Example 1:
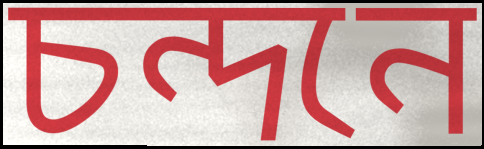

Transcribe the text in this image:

চন্দনে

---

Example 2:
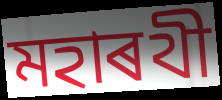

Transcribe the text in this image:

মহাৰথী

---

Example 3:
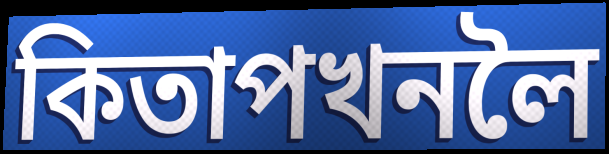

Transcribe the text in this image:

কিতাপখনলৈ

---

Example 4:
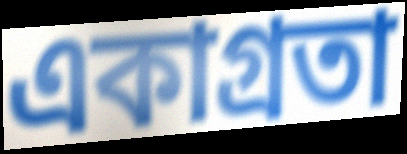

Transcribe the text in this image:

একাগ্ৰতা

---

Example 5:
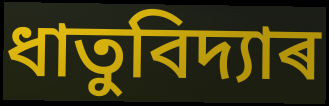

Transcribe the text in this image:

ধাতুবিদ্যাৰ